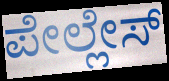
ಪೇಲ್ಲೇಸ್